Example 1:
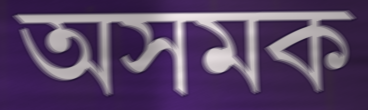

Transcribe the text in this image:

অসমক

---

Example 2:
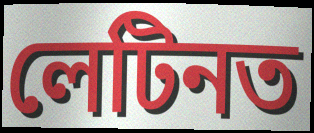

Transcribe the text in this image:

লেটিনত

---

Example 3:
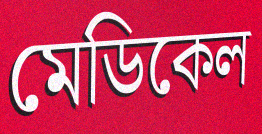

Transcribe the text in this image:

মেডিকেল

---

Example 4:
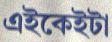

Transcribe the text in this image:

এইকেইটা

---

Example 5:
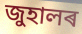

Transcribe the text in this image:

জুহালৰ